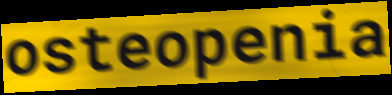
osteopenia